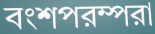
বংশপরম্পরা